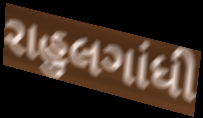
રાહુલગાંધી